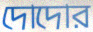
দোদোর